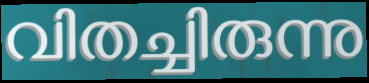
വിതച്ചിരുന്നു